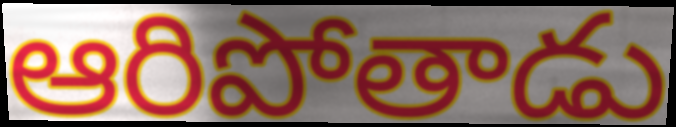
ఆరిపోతాడు